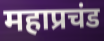
महाप्रचंड